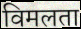
विमलता